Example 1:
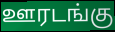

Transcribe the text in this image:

ஊரடங்கு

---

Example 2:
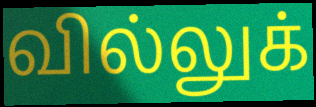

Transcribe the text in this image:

வில்லுக்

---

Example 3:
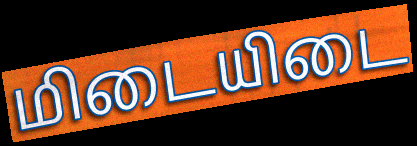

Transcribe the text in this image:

மிடையிடை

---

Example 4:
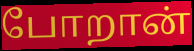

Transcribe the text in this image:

போறான்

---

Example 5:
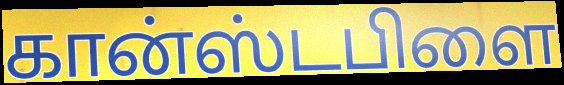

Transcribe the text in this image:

கான்ஸ்டபிளை